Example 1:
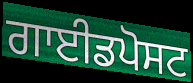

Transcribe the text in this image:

ਗਾਈਡਪੋਸਟ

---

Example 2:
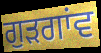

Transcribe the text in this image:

ਗੁਡ਼ਗਾਂਵ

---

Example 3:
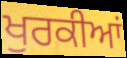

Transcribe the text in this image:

ਖੁਰਕੀਆਂ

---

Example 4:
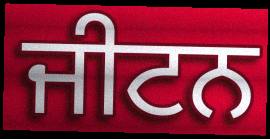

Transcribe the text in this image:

ਜੀਟਨ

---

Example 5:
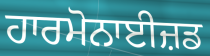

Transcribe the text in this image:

ਹਾਰਮੋਨਾਈਜ਼ਡ